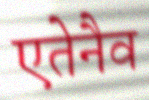
एतेनैव